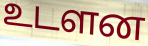
உடளன